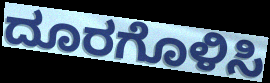
ದೂರಗೊಳಿಸಿ